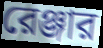
রেঞ্জার